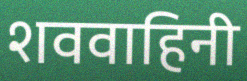
शववाहिनी